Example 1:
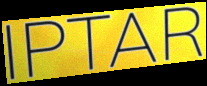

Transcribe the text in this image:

IPTAR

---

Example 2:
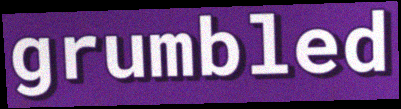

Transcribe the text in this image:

grumbled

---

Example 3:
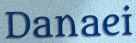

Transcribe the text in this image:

Danaei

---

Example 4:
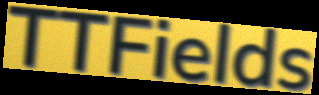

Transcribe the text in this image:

TTFields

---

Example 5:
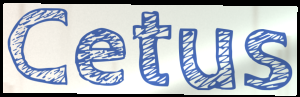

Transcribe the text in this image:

Cetus